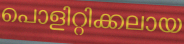
പൊളിറ്റിക്കലായ